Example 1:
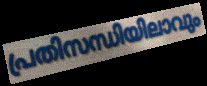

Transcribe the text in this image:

പ്രതിസന്ധിയിലാവും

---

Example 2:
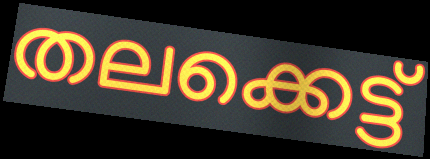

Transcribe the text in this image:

തലക്കെട്ട്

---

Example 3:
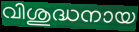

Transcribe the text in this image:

വിശുദ്ധനായ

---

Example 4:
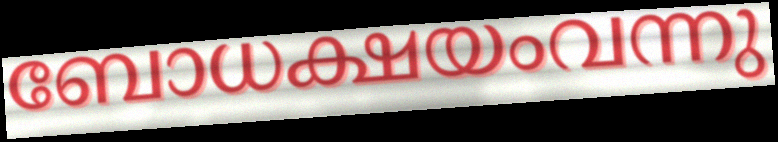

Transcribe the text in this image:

ബോധക്ഷയംവന്നു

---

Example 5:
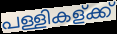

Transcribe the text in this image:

പള്ളികള്ക്ക്